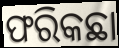
ଫରିକଛା